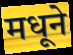
मधूने